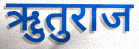
ऋुतुराज